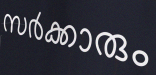
സർക്കാരും